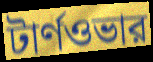
টার্ণওভার